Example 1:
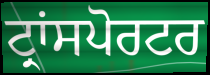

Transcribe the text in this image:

ਟ੍ਰਾਂਸਪੋਰਟਰ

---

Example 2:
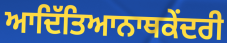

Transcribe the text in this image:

ਆਦਿੱਤਿਆਨਾਥਕੇਂਦਰੀ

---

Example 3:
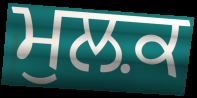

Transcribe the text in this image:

ਮੁਲ਼ਕ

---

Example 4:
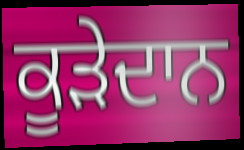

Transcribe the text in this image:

ਕੂੜੇਦਾਨ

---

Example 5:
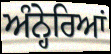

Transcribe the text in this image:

ਅੰਨ੍ਹੇਰਿਆਂ